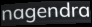
nagendra